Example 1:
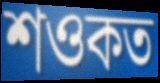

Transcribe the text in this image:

শওকত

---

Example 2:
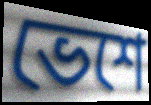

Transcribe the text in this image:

ভেশে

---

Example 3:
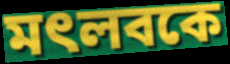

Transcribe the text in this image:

মৎলবকে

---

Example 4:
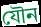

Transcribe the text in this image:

যৌন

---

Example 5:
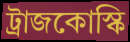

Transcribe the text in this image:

ট্রাজকোস্কি